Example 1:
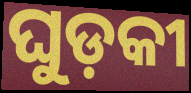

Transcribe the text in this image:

ଘୁଡ଼କୀ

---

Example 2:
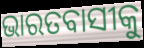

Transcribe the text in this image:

ଭାରତବାସୀକୁ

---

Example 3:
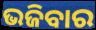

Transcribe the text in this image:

ଭଜିବାର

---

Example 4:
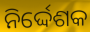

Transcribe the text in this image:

ନିର୍ଦ୍ଦେଶକ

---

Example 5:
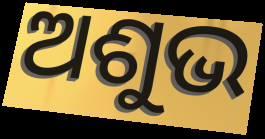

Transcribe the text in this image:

ଅଶୁଭ